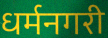
धर्मनगरी